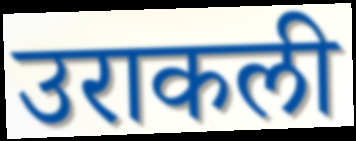
उराकली